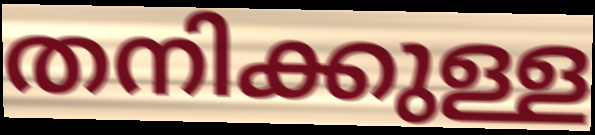
തനിക്കുള്ള